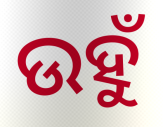
ଉହୁଁ